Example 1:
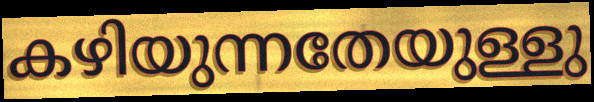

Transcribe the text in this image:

കഴിയുന്നതേയുള്ളു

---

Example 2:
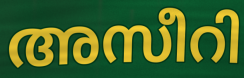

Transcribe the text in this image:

അസീറി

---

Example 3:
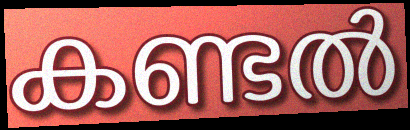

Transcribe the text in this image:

കണ്ടൽ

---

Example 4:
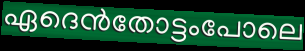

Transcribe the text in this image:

ഏദെൻതോട്ടംപോലെ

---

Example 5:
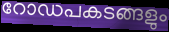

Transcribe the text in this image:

റോഡപകടങ്ങളും